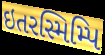
ઇતરસ્મિમ્પિ